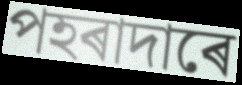
পহৰাদাৰে